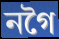
নগৈ